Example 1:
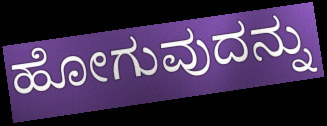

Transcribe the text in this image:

ಹೋಗುವುದನ್ನು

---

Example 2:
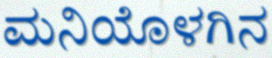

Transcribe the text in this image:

ಮನಿಯೊಳಗಿನ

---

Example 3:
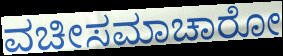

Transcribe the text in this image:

ವಚೀಸಮಾಚಾರೋ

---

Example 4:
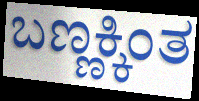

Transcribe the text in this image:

ಬಣ್ಣಕ್ಕಿಂತ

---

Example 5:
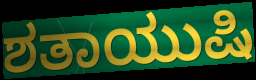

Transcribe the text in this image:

ಶತಾಯುಷಿ